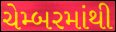
ચેમ્બરમાંથી